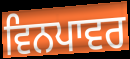
ਵਿਨਪਾਵਰ